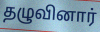
தழுவினார்